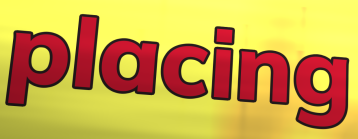
placing